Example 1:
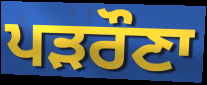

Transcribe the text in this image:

ਪੜਰੌਣਾ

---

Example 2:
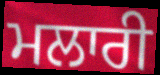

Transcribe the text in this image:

ਮਲਾਰੀ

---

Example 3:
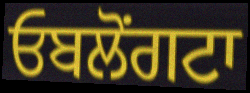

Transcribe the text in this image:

ਓਬਲੋਂਗਟਾ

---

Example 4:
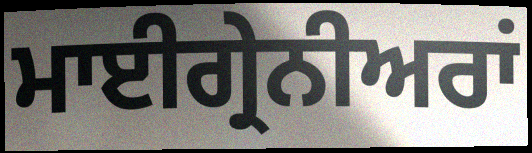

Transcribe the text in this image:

ਮਾਈਗ੍ਰੇਨੀਅਰਾਂ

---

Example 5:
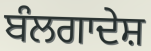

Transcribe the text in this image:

ਬੰਲਗਾਦੇਸ਼